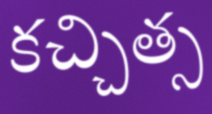
కచ్చిత్స